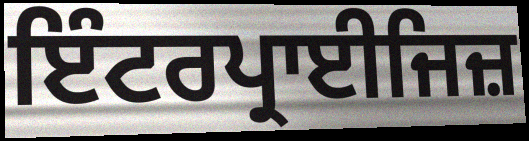
ਇੰਟਰਪ੍ਰਾਈਜਿਜ਼